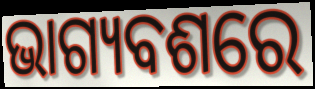
ଭାଗ୍ୟବଶରେ